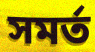
সমর্ত